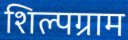
शिल्पग्राम